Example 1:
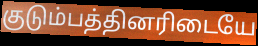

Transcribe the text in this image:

குடும்பத்தினரிடையே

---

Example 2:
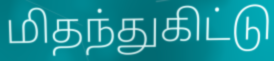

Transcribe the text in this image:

மிதந்துகிட்டு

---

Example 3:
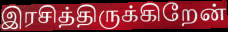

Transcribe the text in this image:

இரசித்திருக்கிறேன்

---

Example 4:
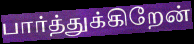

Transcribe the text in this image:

பார்த்துக்கிறேன்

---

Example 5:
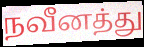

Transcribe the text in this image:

நவீனத்து